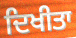
ਦਿਖੀਤਾ